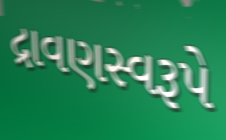
દ્રાવણસ્વરૂપે